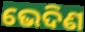
ଭେଦିଣ